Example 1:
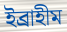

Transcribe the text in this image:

ইব্রাহীম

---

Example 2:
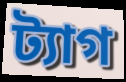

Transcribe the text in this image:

ট্যাগ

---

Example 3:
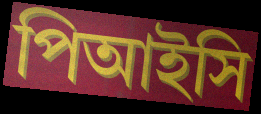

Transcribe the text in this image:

পিআইসি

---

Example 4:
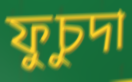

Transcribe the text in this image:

ফুচুদা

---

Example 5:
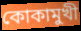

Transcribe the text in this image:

কোকামুখী